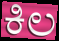
ಕಿಲ